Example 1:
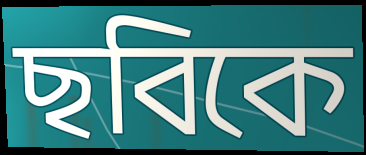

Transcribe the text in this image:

ছবিকে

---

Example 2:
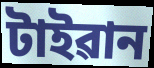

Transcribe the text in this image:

টাইৱান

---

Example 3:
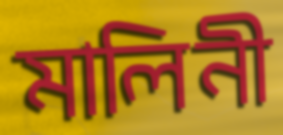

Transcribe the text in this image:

মালিনী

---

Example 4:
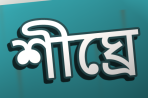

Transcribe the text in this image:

শীঘ্ৰে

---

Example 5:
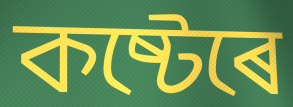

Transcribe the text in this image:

কষ্টেৰে